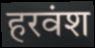
हरवंश